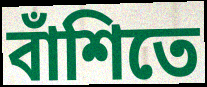
বাঁশিতে